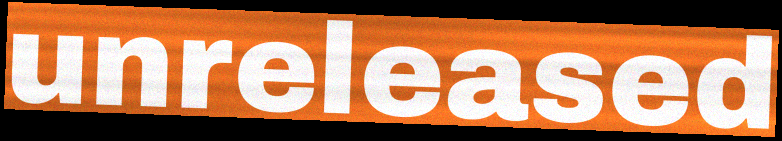
unreleased